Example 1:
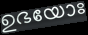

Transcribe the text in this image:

ഉഭയോഃ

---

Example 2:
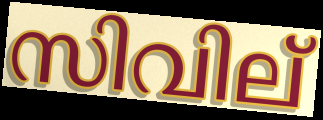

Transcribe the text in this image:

സിവില്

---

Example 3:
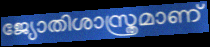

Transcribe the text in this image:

ജ്യോതിശാസ്ത്രമാണ്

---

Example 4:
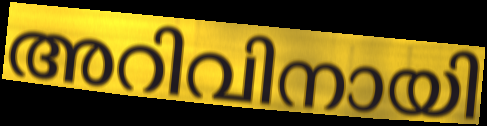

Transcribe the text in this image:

അറിവിനായി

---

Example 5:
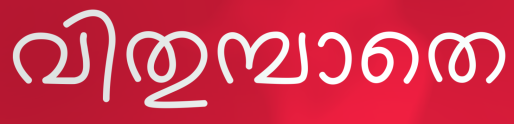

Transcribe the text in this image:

വിതുമ്പാതെ